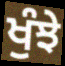
ਖੁੰਝੇ